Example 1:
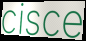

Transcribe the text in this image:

cisce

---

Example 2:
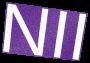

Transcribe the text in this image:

NII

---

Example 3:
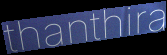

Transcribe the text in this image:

thanthira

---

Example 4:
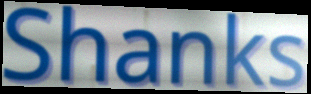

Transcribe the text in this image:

Shanks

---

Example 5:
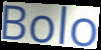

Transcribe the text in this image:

Bolo